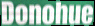
Donohue